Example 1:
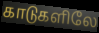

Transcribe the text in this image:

காடுகளிலே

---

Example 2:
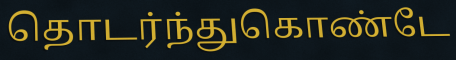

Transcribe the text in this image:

தொடர்ந்துகொண்டே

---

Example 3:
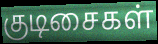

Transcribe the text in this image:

குடிசைகள்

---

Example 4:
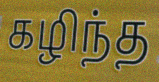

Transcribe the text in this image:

கழிந்த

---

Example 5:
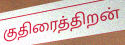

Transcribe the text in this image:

குதிரைத்திறன்